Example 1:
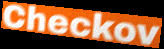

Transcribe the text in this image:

Checkov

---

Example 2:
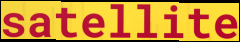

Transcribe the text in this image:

satellite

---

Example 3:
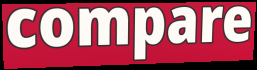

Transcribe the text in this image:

compare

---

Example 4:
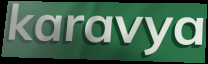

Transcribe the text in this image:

karavya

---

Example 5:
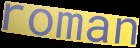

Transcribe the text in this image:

roman